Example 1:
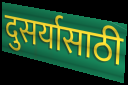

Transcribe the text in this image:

दुसर्यासाठी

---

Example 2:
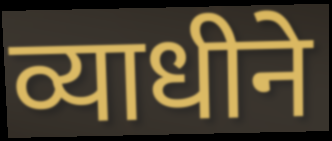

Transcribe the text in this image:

व्याधीने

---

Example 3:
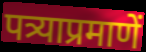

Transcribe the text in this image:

पत्र्याप्रमाणें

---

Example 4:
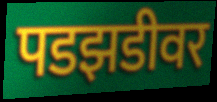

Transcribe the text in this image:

पडझडीवर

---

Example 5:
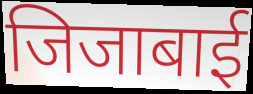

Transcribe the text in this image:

जिजाबाई